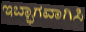
ಇಬ್ಭಾಗವಾಗಿಸಿ